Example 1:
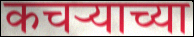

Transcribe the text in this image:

कचर्‍याच्या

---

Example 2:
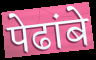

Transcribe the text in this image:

पेढांबे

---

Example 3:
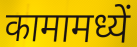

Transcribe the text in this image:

कामामध्यें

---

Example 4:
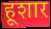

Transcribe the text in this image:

हूशार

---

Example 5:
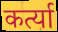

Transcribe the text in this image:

कर्त्या